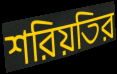
শরিয়তির